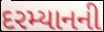
દરમ્યાનની